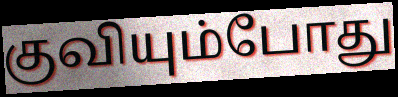
குவியும்போது